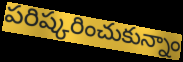
పరిష్కరించుకున్నాం